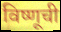
विष्णूची